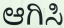
ಆಗಿಸಿ